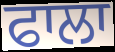
ਫਾਲਾ